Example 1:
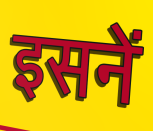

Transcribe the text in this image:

इसनें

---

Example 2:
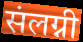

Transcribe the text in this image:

संलग्नी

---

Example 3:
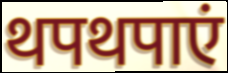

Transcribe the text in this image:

थपथपाएं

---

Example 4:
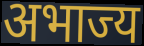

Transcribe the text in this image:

अभाज्य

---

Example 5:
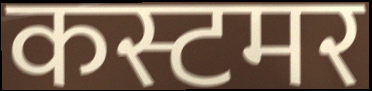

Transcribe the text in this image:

कस्‍टमर